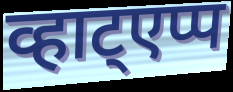
व्हाट्एप्प